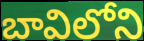
బావిలోని